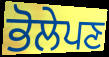
ਭੋਲੇਪਣ